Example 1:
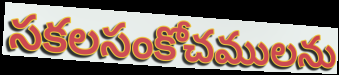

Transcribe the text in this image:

సకలసంకోచములను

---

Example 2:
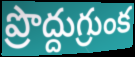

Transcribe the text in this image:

ప్రొద్దుగ్రుంక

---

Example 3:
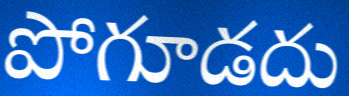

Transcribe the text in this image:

పోగూడదు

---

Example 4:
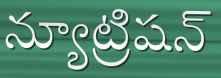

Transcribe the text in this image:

న్యూట్రిషన్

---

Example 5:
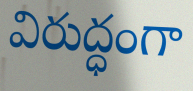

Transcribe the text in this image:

విరుద్ధంగా